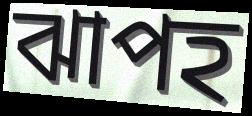
ঝাপহ